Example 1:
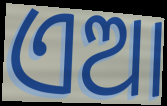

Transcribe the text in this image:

ଏଆ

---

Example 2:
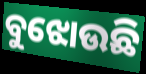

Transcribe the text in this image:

ବୁଝୋଉଛି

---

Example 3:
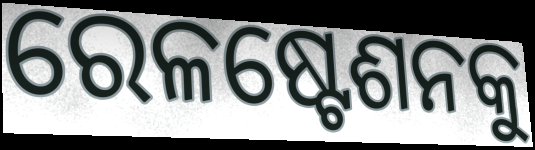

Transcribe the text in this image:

ରେଳଷ୍ଟେଶନକୁ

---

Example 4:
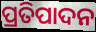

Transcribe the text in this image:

ପ୍ରତିପାଦନ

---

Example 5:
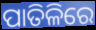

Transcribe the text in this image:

ପାତିଳିରେ